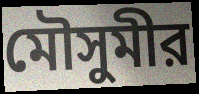
মৌসুমীর